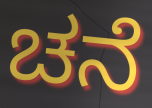
ಚನೆ